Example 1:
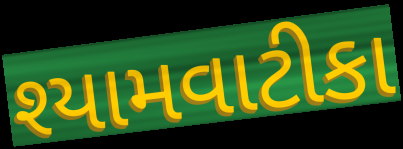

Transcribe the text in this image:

શ્યામવાટીકા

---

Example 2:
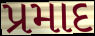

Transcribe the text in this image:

પ્રમાદ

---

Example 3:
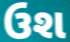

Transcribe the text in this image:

ઉશ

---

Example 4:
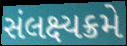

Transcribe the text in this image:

સંલક્ષ્યક્રમે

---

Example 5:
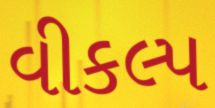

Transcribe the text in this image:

વીકલ્પ